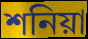
শনিয়া